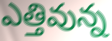
ఎత్తివున్న